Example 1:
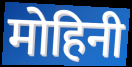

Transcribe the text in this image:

मोहिनी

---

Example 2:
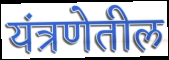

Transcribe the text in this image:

यंत्रणेतील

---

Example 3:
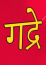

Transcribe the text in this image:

गद्रे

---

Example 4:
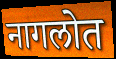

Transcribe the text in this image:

नागलोत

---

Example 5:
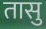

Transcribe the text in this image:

तासु